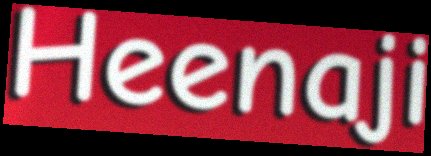
Heenaji